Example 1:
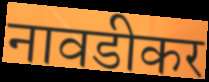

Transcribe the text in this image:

नावडीकर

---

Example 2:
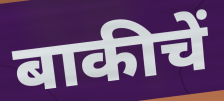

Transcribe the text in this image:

बाकीचें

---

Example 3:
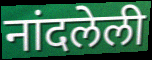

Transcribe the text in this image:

नांदलेली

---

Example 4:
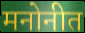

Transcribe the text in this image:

मनोनीत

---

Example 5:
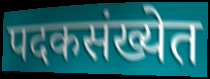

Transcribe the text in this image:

पदकसंख्येत